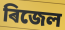
ৰিজেল